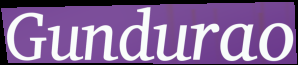
Gundurao